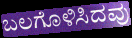
ಬಲಗೊಳಿಸಿದವು